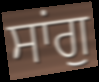
ਸਾਂਗੁ